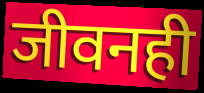
जीवनही